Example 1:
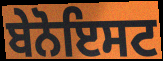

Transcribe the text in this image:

ਬੇਨੋਇਸਟ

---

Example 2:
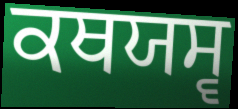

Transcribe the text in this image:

ਕਥਯਸ੍ਵ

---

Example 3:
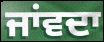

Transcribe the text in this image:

ਜਾਂਵਦਾ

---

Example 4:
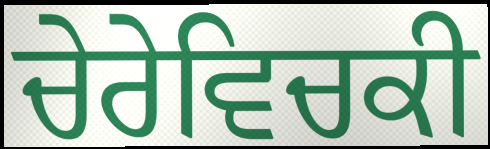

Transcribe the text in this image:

ਚੇਰੇਵਿਚਕੀ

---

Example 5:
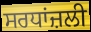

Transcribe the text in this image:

ਸਰਧਾਂਜ਼ਲੀ